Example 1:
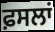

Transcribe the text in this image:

ਫ਼ਸਲਾਂ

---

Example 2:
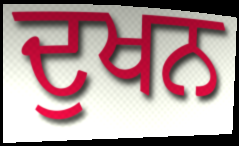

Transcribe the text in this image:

ਦੁਖਨ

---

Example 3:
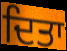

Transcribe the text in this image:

ਦਿਤਾ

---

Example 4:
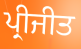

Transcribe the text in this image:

ਪ੍ਰੀਜੀਤ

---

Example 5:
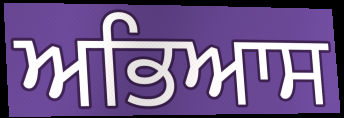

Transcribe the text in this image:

ਅਭਿਆਸ